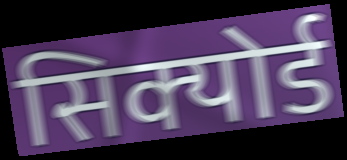
सिक्योर्ड